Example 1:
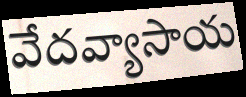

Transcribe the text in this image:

వేదవ్యాసాయ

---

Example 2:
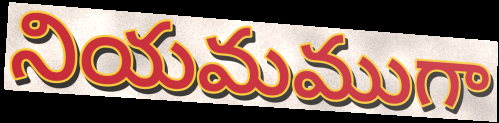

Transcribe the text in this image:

నియమముగా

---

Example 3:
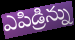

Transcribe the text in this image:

ఎపిడ్రిన్ను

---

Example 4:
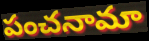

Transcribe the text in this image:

పంచనామా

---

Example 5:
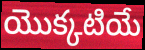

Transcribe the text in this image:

యొక్కటియే